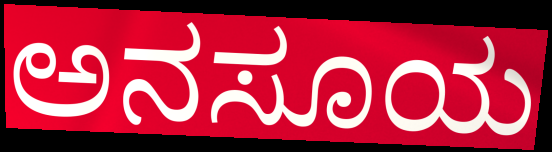
ಅನಸೂಯ